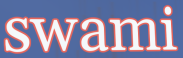
swami